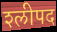
श्लीपद